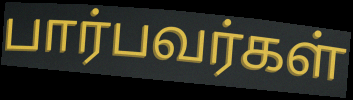
பார்பவர்கள்